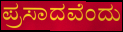
ಪ್ರಸಾದವೆಂದು